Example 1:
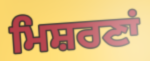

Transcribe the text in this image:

ਮਿਸ਼ਰਣਾਂ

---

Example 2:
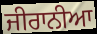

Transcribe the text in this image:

ਜੀਰਾਨੀਆ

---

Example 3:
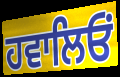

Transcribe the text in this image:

ਹਵਾਲਿਓਂ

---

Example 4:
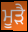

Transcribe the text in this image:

ਮੂੜੈ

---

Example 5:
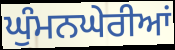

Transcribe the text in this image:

ਘੁੰਮਨਘੇਰੀਆਂ